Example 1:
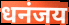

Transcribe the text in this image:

धनंजय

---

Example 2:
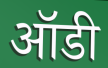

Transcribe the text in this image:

ऑडी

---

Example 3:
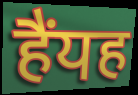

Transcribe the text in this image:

हैंयह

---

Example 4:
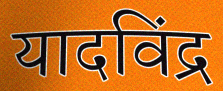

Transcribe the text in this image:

यादविंद्र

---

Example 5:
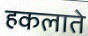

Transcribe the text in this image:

हकलाते